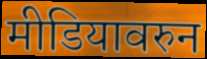
मीडियावरुन